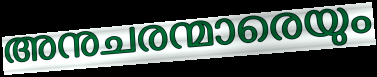
അനുചരന്മാരെയും